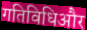
गतिविधिऔर